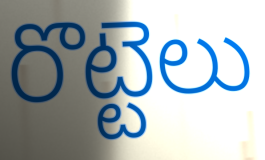
రొట్టెలు